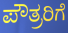
ಪೌತ್ರರಿಗೆ